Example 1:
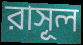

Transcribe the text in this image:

রাসূল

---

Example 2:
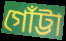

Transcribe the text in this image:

গোঁট্টা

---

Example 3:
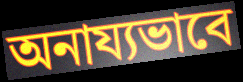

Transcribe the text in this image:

অনায্যভাবে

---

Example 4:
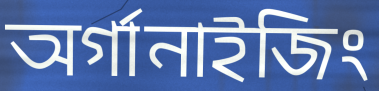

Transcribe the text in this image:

অর্গানাইজিং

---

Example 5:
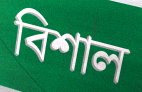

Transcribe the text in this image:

বিশাল